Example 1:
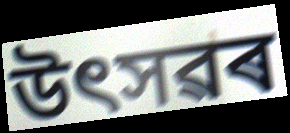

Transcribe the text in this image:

উৎসৱৰ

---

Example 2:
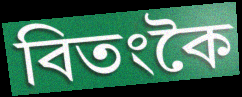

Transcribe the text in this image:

বিতংকৈ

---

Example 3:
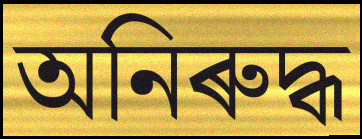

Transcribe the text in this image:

অনিৰুদ্ধ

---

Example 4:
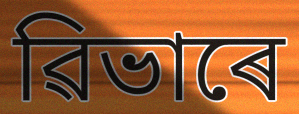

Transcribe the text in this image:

ৱিভাৰে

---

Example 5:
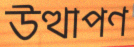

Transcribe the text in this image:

উত্থাপণ